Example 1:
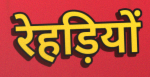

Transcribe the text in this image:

रेहड़ियों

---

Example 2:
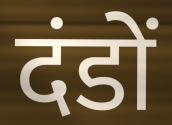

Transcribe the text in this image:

दंडों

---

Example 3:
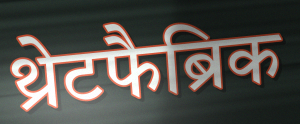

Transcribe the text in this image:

थ्रेटफैब्रिक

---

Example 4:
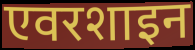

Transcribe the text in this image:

एवरशाइन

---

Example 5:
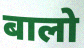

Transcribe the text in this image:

बालो